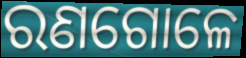
ରଣଗୋଳେ